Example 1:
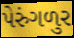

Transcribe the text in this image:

પેરુંગળુર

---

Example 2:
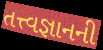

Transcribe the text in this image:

તત્ત્વજ્ઞાનની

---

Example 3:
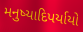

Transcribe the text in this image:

મનુષ્યાદિપર્યાયો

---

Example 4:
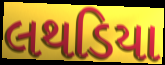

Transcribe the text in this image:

લથડિયા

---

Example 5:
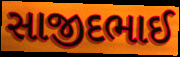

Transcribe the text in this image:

સાજીદભાઈ